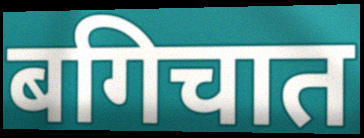
बगिचात